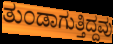
ತುಂಡಾಗುತ್ತಿದ್ದವು